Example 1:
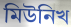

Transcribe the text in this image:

মিউনিখ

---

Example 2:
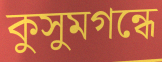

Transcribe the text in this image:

কুসুমগন্ধে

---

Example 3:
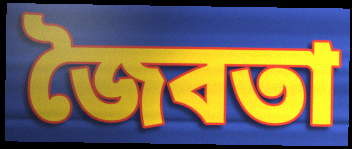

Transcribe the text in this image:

জৈবতা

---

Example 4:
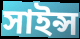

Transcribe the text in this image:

সাইন্স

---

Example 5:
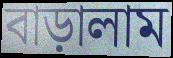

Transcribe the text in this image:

বাড়ালাম